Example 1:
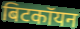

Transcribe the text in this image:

बिटकॉयन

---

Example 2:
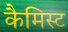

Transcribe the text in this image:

कैमिस्ट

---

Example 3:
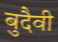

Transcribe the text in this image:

बुदैवी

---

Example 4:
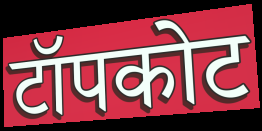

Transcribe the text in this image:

टॉपकोट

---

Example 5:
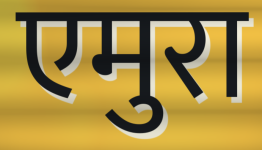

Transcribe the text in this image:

एमुरा